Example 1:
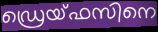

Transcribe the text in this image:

ഡ്രെയ്ഫസിനെ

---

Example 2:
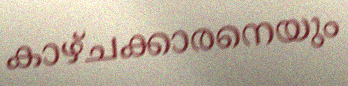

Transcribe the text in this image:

കാഴ്ചക്കാരനെയും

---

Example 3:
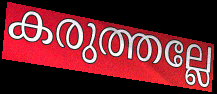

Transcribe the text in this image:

കരുത്തല്ലേ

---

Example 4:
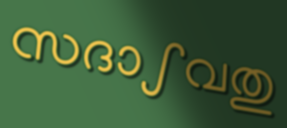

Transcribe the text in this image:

സദാഽവതു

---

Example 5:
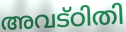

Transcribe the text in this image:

അവട്ഠിതി